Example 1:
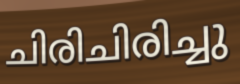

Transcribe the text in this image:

ചിരിചിരിച്ചു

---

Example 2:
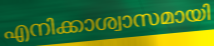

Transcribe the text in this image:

എനിക്കാശ്വാസമായി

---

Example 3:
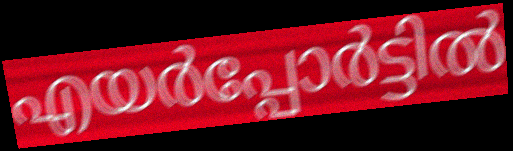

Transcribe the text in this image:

എയർപ്പോർട്ടിൽ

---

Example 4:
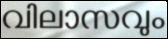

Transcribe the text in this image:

വിലാസവും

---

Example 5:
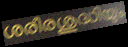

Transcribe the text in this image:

ശരീരശുദ്ധിയും